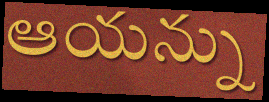
ఆయన్ను